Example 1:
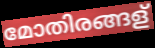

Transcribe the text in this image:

മോതിരങ്ങള്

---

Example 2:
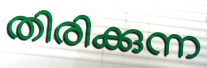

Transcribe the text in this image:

തിരിക്കുന്ന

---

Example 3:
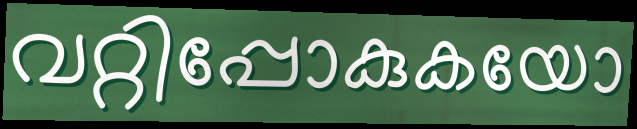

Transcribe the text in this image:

വറ്റിപ്പോകുകയോ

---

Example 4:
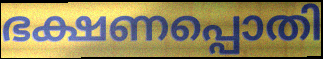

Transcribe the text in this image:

ഭക്ഷണപ്പൊതി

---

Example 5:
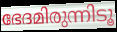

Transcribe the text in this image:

ഭേദമിരുന്നിടൂ